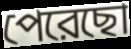
পেরেছো